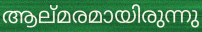
ആല്മരമായിരുന്നു